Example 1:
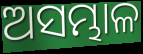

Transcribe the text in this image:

ଅସମ୍ଭାଳ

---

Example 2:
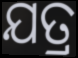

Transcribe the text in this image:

ଯତ୍ର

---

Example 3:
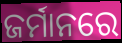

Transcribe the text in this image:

ଜର୍ମାନରେ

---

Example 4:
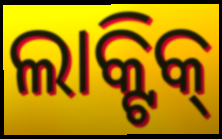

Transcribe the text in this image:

ଲାକ୍ଟିକ୍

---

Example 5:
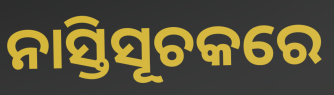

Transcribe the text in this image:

ନାସ୍ତିସୂଚକରେ